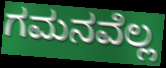
ಗಮನವೆಲ್ಲ